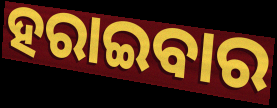
ହରାଇବାର